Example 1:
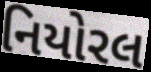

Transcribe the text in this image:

નિયોરલ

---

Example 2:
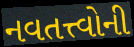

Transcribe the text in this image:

નવતત્ત્વોની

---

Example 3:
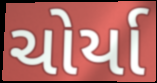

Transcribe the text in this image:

ચોર્યા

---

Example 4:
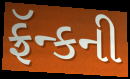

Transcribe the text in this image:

ફ્રૅન્કની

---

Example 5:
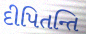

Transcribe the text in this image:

દીપિતન્તિ